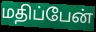
மதிப்பேன்